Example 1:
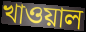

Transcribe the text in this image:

খাওয়াল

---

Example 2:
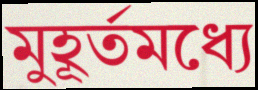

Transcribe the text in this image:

মুহূর্তমধ্যে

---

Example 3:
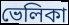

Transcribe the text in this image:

ভেলিকা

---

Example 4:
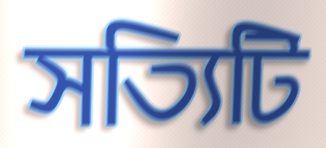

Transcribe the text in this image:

সত্যিটি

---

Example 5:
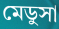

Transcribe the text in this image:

মেডুসা